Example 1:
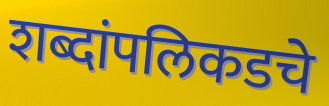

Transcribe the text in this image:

शब्दांपलिकडचे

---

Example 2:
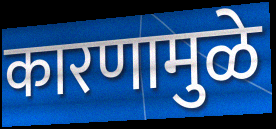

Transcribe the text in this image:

कारणामुळे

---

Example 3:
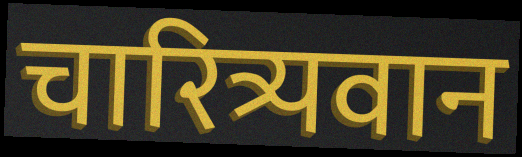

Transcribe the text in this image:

चारित्र्यवान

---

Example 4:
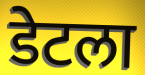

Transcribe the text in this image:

डेटला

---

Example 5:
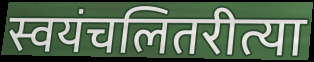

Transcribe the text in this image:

स्वयंचलितरीत्या